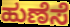
ಹುಣೆಸೆ